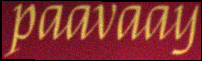
paavaay